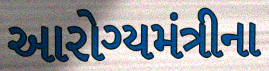
આરોગ્યમંત્રીના